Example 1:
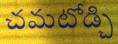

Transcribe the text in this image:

చమటోడ్చి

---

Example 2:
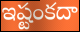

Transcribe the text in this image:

ఇష్టంకదా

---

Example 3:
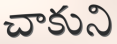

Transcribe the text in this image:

చాకుని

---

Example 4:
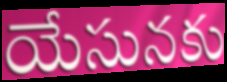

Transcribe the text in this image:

యేసునకు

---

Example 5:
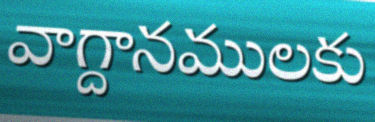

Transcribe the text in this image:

వాగ్దానములకు